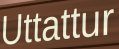
Uttattur